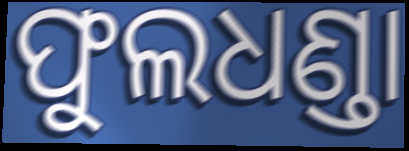
ଫୁଲଧଣ୍ଡା